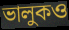
ভালুকও